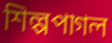
শিল্পপাগল